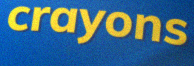
crayons